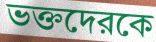
ভক্তদেরকে